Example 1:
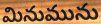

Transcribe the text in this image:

మినుమును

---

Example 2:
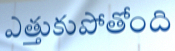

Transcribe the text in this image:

ఎత్తుకుపోతోంది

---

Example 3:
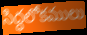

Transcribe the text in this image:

సిద్ధలోకములు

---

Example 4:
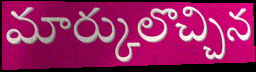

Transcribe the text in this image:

మార్కులొచ్చిన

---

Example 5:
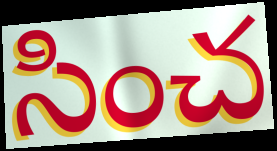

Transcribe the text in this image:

సించ